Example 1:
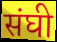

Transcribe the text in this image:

संघी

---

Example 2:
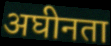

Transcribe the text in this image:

अघीनता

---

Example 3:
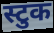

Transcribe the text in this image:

स्टुक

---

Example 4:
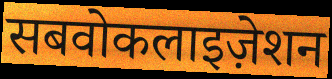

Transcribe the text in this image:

सबवोकलाइज़ेशन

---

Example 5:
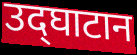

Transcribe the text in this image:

उद्घाटान